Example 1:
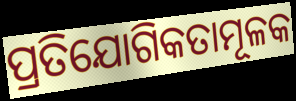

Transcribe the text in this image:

ପ୍ରତିଯୋଗିକତାମୂଳକ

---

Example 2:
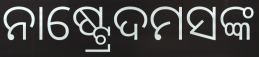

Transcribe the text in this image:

ନାଷ୍ଟ୍ରେଦମସଙ୍କ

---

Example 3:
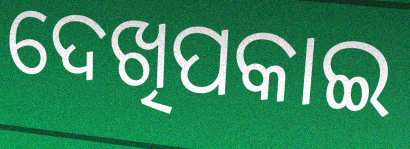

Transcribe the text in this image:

ଦେଖିପକାଇ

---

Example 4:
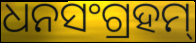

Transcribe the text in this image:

ଧନସଂଗ୍ରହମ୍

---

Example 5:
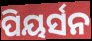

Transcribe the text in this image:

ପିୟର୍ସନ